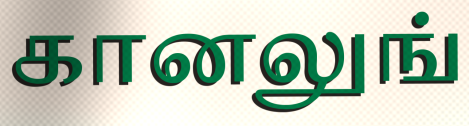
கானலுங்